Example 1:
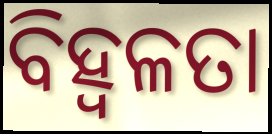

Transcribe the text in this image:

ବିହ୍ଵଳତା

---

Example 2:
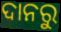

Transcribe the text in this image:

ଦାନରୁ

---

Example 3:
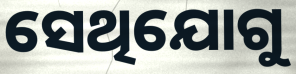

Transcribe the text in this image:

ସେଥିଯୋଗୁ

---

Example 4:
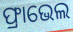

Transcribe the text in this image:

ଫ୍ରାଭେଲ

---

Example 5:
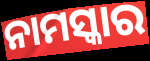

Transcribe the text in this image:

ନାମସ୍କାର